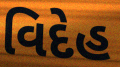
વિદેહ